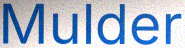
Mulder